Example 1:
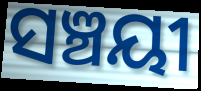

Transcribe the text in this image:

ସଞ୍ଚୟୀ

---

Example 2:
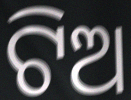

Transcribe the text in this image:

ଟିଅ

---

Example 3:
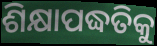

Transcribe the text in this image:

ଶିକ୍ଷାପଦ୍ଧତିକୁ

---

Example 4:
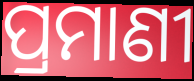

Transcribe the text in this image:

ପ୍ରମାଣୀ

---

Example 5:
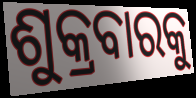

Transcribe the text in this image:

ଶୁକ୍ରବାରକୁ